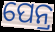
ପେନ୍ର